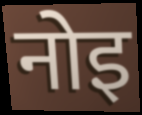
नोइ